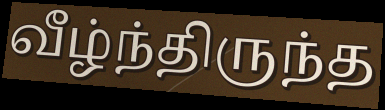
வீழ்ந்திருந்த